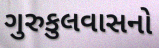
ગુરુકુલવાસનો